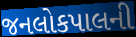
જનલોકપાલની